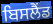
ਬਿਸਲੈਂਡ